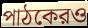
পাঠকেরও